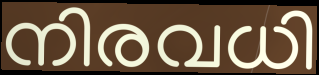
നിരവധി